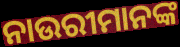
ନାଉରୀମାନଙ୍କ